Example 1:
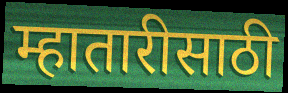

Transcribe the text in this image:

म्हातारीसाठी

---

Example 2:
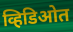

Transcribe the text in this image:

व्हिडिओत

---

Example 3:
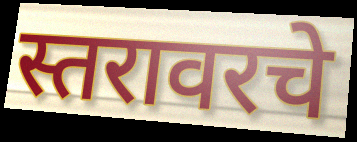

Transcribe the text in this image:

स्तरावरचे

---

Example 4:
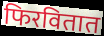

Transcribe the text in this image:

फिरवितात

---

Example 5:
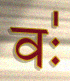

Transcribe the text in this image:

वः॑